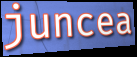
juncea